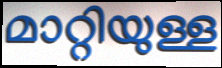
മാറ്റിയുള്ള